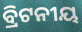
ବ୍ରିଟନୀୟ